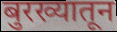
बुरख्यातून